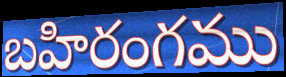
బహిరంగము